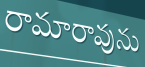
రామారావును